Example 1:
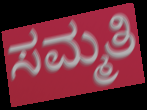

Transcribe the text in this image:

ಸಮ್ಮತಿ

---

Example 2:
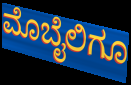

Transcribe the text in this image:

ಮೊಬೈಲಿಗೂ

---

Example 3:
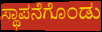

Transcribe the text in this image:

ಸ್ಥಾಪನೆಗೊಂಡು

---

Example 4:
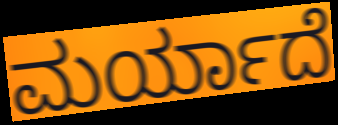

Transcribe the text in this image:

ಮರ್ಯಾದೆ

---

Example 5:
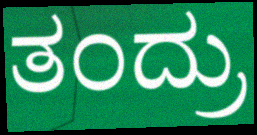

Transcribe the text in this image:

ತಂದ್ರು